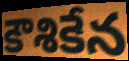
కౌశికేన